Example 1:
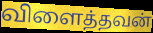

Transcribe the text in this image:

விளைத்தவன்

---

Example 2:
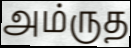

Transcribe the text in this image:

அம்ருத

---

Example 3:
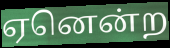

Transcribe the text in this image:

ஏனென்ற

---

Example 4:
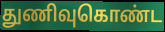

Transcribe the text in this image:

துணிவுகொண்ட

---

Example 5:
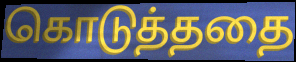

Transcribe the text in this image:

கொடுத்ததை